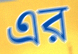
এর